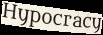
Hypocracy